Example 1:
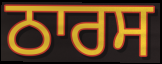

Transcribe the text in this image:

ਠਾਰਸ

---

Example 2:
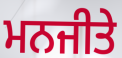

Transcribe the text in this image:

ਮਨਜੀਤੇ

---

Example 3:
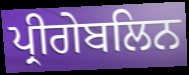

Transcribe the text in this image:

ਪ੍ਰੀਗੇਬਲਿਨ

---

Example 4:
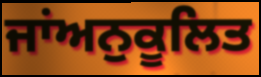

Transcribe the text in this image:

ਜਾਂਅਨੁਕੂਲਿਤ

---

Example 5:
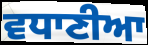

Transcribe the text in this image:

ਵਧਾਣੀਆ